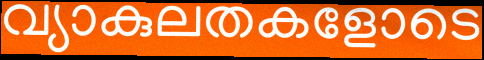
വ്യാകുലതകളോടെ